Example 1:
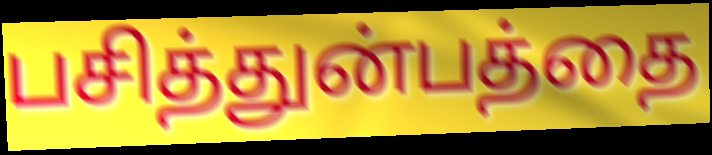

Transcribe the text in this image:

பசித்துன்பத்தை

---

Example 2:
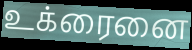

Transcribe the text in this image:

உக்ரைனை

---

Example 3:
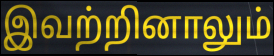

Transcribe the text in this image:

இவற்றினாலும்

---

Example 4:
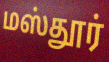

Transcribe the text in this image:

மஸ்தூர்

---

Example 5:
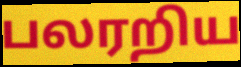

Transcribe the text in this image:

பலரறிய